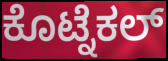
ಕೊಟ್ನೆಕಲ್